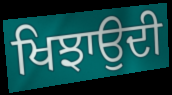
ਖਿਝਾਉਦੀ